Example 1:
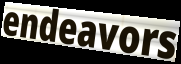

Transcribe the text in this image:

endeavors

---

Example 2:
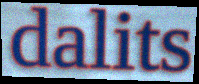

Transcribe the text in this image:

dalits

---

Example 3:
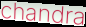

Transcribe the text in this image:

chandra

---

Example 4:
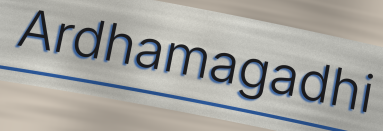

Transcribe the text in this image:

Ardhamagadhi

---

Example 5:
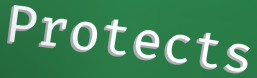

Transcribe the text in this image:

Protects